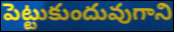
పెట్టుకుందువుగాని